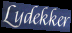
Lydekker